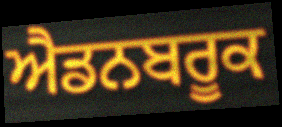
ਐਡਨਬਰੂਕ